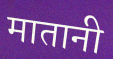
मातानी